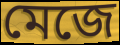
মেজে